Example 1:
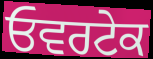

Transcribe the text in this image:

ਓਵਰਟੇਕ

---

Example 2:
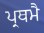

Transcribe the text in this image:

ਪ੍ਰਥਮੈ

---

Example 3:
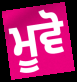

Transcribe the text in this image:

ਮੂਵੋ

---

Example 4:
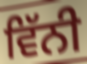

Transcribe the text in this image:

ਵਿੱਨੀ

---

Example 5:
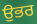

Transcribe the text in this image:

ਉਭਰ